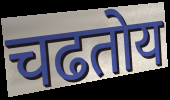
चढतोय